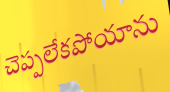
చెప్పలేకపోయాను